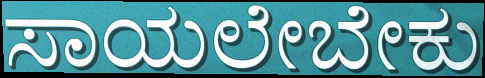
ಸಾಯಲೇಬೇಕು